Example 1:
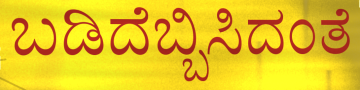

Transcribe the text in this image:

ಬಡಿದೆಬ್ಬಿಸಿದಂತೆ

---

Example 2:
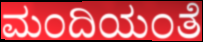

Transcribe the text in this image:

ಮಂದಿಯಂತೆ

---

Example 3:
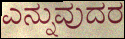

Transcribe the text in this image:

ಎನ್ನುವುದರ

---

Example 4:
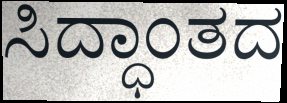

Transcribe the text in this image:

ಸಿದ್ಧಾಂತದ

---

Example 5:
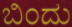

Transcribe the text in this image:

ಬಿಂದು